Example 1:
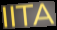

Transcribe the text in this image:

IITA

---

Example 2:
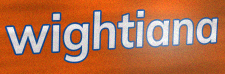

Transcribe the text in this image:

wightiana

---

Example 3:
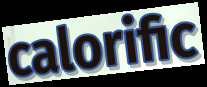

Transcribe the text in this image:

calorific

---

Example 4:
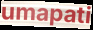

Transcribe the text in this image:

umapati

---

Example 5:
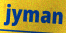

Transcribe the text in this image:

jyman